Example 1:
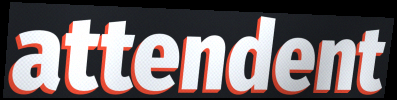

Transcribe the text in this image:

attendent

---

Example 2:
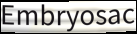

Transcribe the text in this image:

Embryosac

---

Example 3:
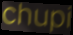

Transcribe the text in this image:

chupi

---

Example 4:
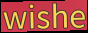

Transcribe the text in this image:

wishe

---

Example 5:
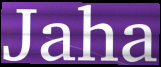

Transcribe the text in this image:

Jaha